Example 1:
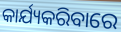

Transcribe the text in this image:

କାର୍ଯ୍ୟକରିବାରେ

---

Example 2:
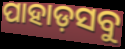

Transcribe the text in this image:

ପାହାଡ଼ସବୁ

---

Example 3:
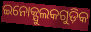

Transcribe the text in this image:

ଇନୋକ୍ଯୁଲକଗୁଡ଼ିକ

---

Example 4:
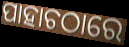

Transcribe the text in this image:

ପାହାଚଠାରେ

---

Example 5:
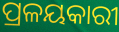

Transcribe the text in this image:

ପ୍ରଳୟକାରୀ